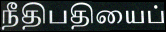
நீதிபதியைப்